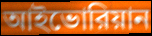
আইভোরিয়ান